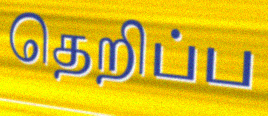
தெறிப்ப